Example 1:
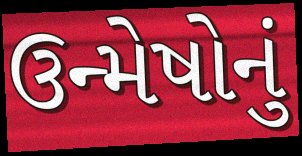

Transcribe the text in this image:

ઉન્મેષોનું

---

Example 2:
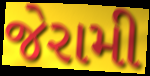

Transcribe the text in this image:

જેરામી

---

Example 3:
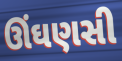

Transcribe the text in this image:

ઊંઘણસી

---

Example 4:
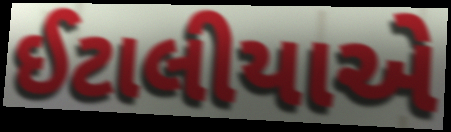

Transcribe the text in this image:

ઈટાલીયાએ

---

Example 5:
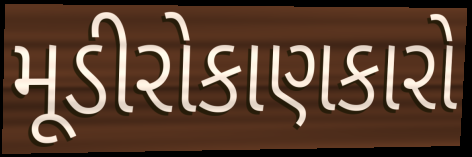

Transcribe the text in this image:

મૂડીરોકાણકારો